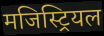
मजिस्ट्रियल